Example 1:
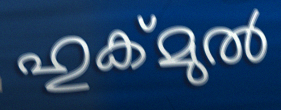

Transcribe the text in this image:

ഹുക്മുൽ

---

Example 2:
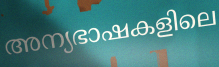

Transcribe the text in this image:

അന്യഭാഷകളിലെ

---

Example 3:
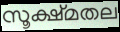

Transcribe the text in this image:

സൂക്ഷ്മതല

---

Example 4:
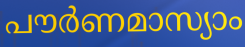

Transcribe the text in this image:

പൗർണമാസ്യാം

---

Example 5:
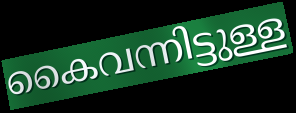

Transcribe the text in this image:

കൈവന്നിട്ടുള്ള